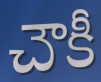
చౌకీ